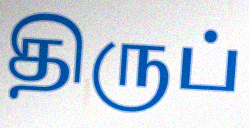
திருப்